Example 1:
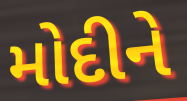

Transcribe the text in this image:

મોદીને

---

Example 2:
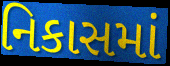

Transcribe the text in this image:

નિકાસમાં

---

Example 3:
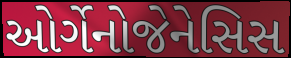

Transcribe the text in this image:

ઓર્ગેનોજેનેસિસ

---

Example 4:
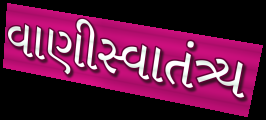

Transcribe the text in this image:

વાણીસ્વાતંત્ર્ય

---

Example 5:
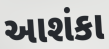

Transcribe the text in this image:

આશંકા